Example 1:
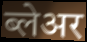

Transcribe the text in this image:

ब्लेअर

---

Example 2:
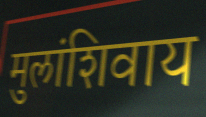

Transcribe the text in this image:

मुलांशिवाय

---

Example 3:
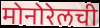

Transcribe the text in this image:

मोनोरेलची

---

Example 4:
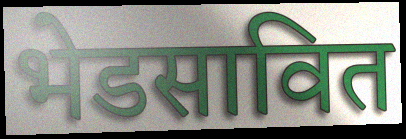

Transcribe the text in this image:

भेडसावित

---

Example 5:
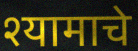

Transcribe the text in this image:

श्यामाचे